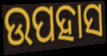
ଉପହାସ